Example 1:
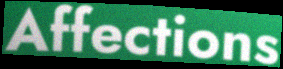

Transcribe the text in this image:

Affections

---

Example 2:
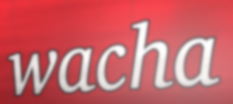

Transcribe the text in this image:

wacha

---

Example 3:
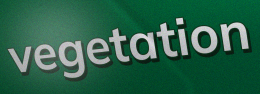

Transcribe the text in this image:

vegetation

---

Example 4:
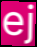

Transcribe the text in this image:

ej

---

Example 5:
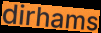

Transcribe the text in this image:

dirhams